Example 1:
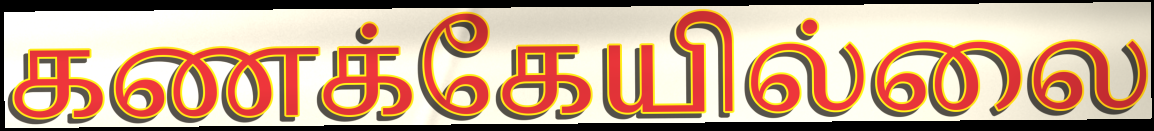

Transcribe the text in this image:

கணக்கேயில்லை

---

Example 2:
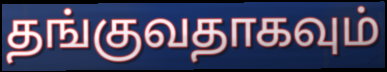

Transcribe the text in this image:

தங்குவதாகவும்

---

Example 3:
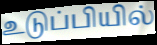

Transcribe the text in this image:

உடுப்பியில்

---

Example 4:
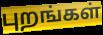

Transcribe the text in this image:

புறங்கள்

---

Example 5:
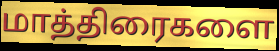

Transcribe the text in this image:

மாத்திரைகளை